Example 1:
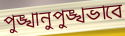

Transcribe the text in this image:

পুঙ্খানুপুঙ্খভাবে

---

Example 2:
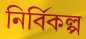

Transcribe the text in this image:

নির্বিকল্প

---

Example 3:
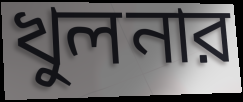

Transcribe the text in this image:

খুলনার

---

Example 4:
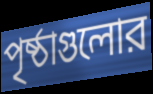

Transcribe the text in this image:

পৃষ্ঠাগুলোর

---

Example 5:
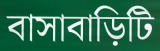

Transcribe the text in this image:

বাসাবাড়িটি